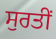
ਸੁਰਤੀਂ